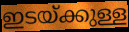
ഇടയ്ക്കുള്ള